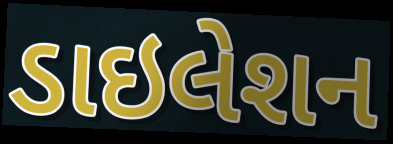
ડાઇલેશન